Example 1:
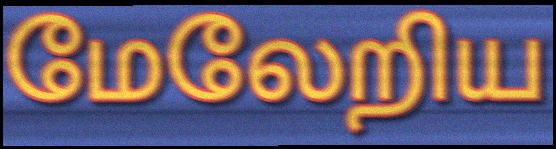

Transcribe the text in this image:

மேலேறிய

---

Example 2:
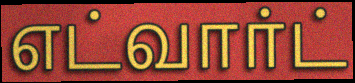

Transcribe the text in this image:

எட்வார்ட்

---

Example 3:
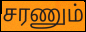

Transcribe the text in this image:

சரணும்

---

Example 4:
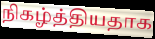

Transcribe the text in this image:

நிகழ்த்தியதாக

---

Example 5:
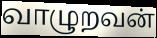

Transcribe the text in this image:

வாழுறவன்